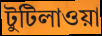
টুটিলাওয়া